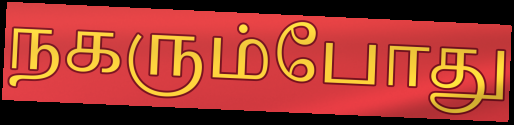
நகரும்போது